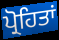
ਪ੍ਰੋਹਿਤਾਂ